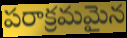
పరాక్రమమైన